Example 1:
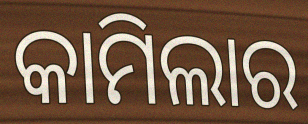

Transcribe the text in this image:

କାମିଲାର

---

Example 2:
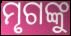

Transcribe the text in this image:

ମୃଗଙ୍କୁ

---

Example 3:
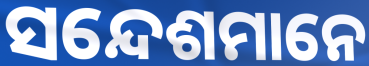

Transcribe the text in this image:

ସନ୍ଦେଶମାନେ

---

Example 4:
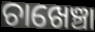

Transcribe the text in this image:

ଚାଖେଞ୍ଚା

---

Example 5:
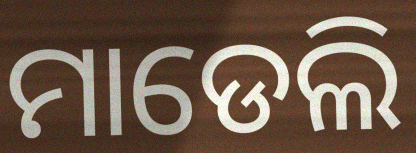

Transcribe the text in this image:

ମାଡେଲି